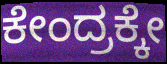
ಕೇಂದ್ರಕ್ಕೇ